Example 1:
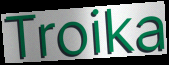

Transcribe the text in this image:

Troika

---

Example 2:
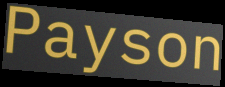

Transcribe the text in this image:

Payson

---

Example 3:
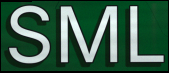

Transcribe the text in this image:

SML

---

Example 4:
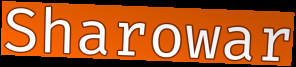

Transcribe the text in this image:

Sharowar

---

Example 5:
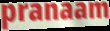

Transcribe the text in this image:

pranaam